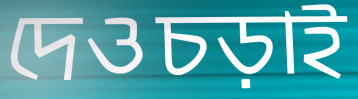
দেওচড়াই